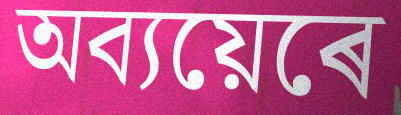
অব্যয়েৰে